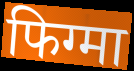
फिग्मा